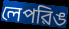
লেপৱিঙ